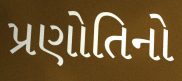
પ્રણોતિનો